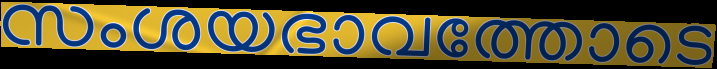
സംശയഭാവത്തോടെ